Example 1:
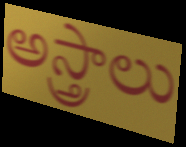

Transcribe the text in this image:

అస్త్రాలు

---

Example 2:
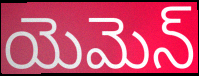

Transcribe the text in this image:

యెమెన్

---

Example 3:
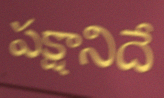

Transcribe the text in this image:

పక్షానిదే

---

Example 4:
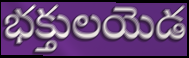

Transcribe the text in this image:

భక్తులయెడ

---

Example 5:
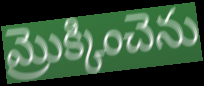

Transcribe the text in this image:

మ్రొక్కించెను